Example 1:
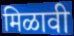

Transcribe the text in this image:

मिळावी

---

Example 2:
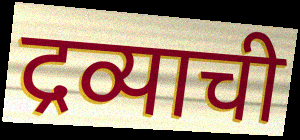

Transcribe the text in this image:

द्रव्याची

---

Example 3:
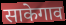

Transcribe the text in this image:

साकेगाव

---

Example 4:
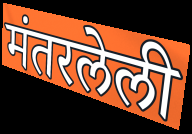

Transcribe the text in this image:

मंतरलेली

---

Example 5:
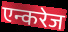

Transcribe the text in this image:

एन्करेज